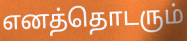
எனத்தொடரும்